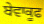
ਬੇਵਾਕੂਫ